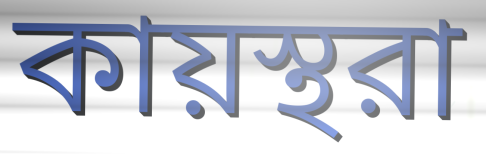
কায়স্থরা